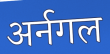
अर्नगल